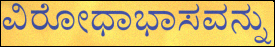
ವಿರೋಧಾಭಾಸವನ್ನು